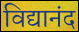
विद्यानंद